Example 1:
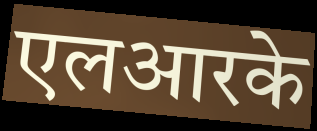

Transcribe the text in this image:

एलआरके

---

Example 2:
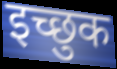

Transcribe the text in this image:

इच्‍छुक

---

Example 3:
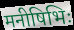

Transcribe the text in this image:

मनीषिभिः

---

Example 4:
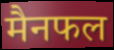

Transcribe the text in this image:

मैनफल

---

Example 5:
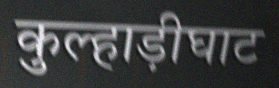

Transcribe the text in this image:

कुल्हाड़ीघाट